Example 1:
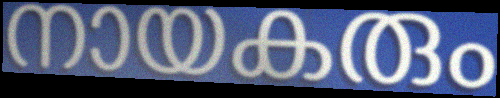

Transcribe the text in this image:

നായകരും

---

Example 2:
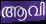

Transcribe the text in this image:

ആവി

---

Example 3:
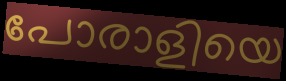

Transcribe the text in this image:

പോരാളിയെ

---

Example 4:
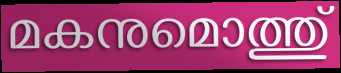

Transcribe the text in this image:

മകനുമൊത്തു്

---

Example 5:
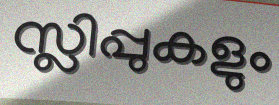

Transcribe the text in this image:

സ്ലിപ്പുകളും